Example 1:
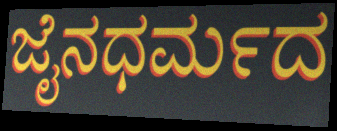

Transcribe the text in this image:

ಜೈನಧರ್ಮದ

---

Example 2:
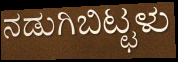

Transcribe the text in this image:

ನಡುಗಿಬಿಟ್ಟಳು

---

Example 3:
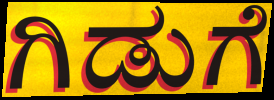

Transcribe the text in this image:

ಗಿಡುಗೆ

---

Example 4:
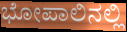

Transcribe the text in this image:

ಭೋಪಾಲಿನಲ್ಲಿ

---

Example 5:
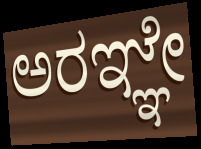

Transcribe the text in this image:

ಅರಞ್ಞೇ